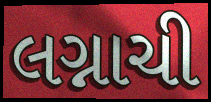
લગ્નાચી